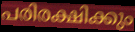
പരിരക്ഷിക്കും